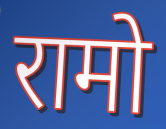
रामो